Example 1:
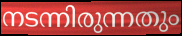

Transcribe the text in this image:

നടന്നിരുന്നതും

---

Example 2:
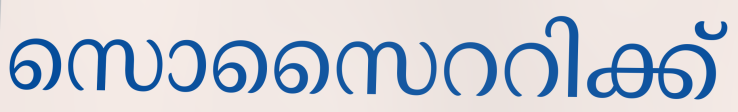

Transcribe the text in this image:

സൊസൈററിക്ക്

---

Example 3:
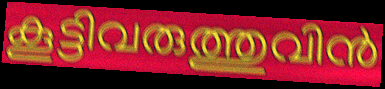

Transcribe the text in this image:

കൂട്ടിവരുത്തുവിൻ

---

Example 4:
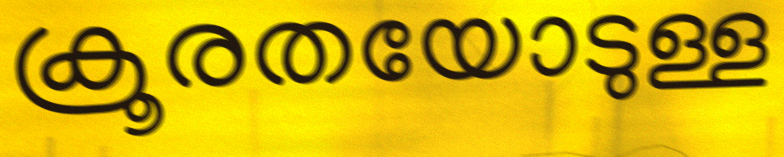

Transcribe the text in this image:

ക്രൂരതയോടുള്ള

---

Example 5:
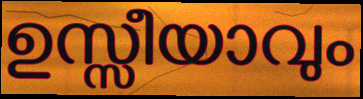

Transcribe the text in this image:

ഉസ്സീയാവും